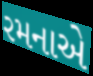
રમનાએ